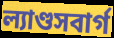
ল্যাণ্ডসবার্গ